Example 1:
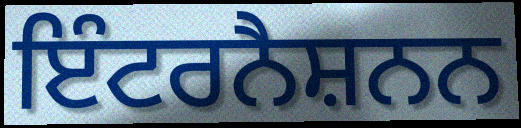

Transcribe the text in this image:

ਇੰਟਰਨੈਸ਼ਨਨ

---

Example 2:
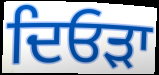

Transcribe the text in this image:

ਦਿਓੜਾ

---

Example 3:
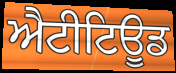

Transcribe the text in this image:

ਐਟੀਟਿਊਡ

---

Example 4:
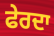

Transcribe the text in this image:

ਫੇਰਦਾ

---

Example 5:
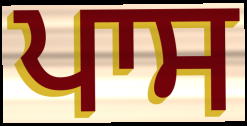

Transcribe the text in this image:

ਪਾਸ